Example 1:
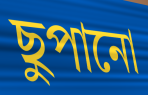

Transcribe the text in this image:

ছুপানো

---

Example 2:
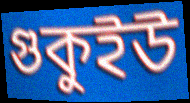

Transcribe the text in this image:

গুকুইউ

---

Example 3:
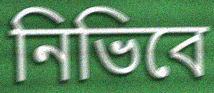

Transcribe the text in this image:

নিভিবে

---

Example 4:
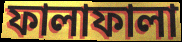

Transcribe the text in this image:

ফালাফালা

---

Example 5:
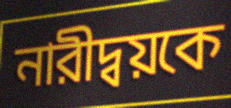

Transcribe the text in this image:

নারীদ্বয়কে